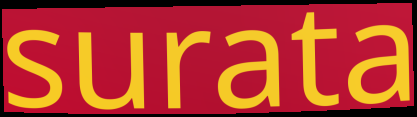
surata